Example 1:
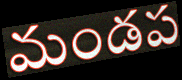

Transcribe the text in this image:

మండప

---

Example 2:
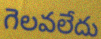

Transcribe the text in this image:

గెలవలేదు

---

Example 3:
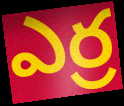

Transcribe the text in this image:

ఎర్ర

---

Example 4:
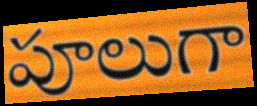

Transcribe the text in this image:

పూలుగా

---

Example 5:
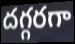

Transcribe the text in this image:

దగ్గరగా